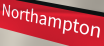
Northampton